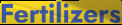
Fertilizers